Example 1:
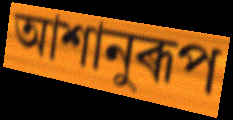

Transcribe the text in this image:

আশানুৰূপ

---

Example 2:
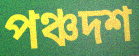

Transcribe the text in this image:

পঞ্চদশ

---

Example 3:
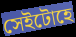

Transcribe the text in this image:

সেইটোহে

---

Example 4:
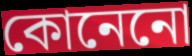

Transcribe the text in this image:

কোনেনো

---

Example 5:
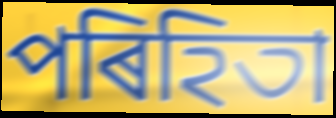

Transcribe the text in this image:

পৰিহিতা